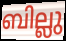
ബില്ലു